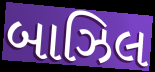
બાઝિલ